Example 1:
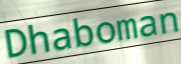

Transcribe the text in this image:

Dhaboman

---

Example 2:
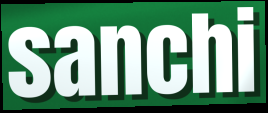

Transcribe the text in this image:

sanchi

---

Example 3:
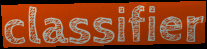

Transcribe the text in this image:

classifier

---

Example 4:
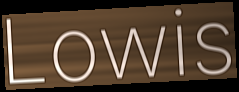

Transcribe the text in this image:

Lowis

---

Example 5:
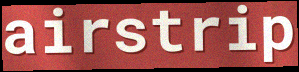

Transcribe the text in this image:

airstrip